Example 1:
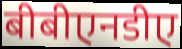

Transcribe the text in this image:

बीबीएनडीए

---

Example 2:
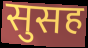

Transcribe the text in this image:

सुसह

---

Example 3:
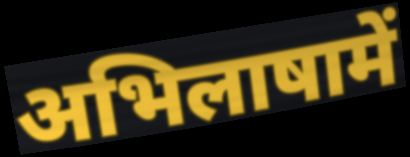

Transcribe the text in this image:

अभिलाषामें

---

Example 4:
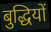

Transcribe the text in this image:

बुद्धियों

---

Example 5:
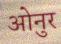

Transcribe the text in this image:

ओनुर